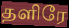
தளிரே